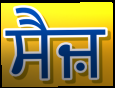
ਸੈਜ਼